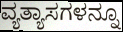
ವ್ಯತ್ಯಾಸಗಳನ್ನೂ